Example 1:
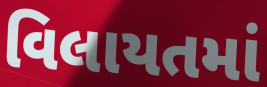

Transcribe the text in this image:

વિલાયતમાં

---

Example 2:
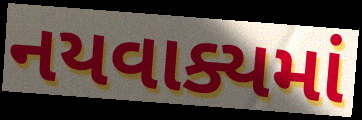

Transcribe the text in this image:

નયવાક્યમાં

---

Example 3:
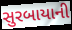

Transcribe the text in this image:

સુરબાયાની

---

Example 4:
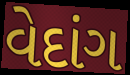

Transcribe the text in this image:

વેદાંગ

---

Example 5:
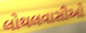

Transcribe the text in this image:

લોથલવાસીઓ